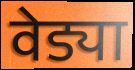
वेड्या